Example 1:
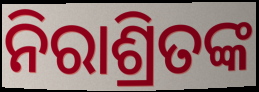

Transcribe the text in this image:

ନିରାଶ୍ରିତଙ୍କ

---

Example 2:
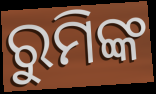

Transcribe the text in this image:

ରୁମିଙ୍କ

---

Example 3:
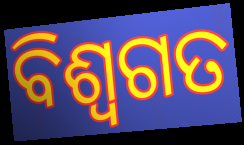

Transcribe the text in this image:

ବିଶ୍ଵଗତ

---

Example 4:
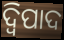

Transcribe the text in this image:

ଦ୍ୱିପାଦ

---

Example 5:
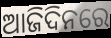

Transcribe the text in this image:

ଆଜିଦିନରେ